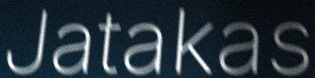
Jatakas